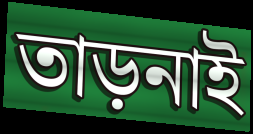
তাড়নাই